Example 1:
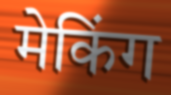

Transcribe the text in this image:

मेकिंग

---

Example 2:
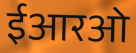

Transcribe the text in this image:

ईआरओ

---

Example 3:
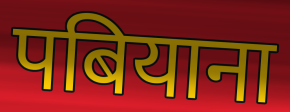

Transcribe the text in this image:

पबियाना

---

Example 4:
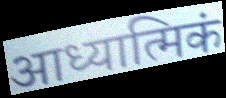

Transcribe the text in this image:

आध्यात्मिकं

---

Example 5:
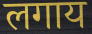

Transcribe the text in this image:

लगाय